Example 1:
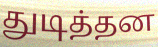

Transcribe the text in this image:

துடித்தன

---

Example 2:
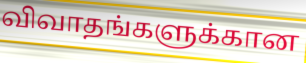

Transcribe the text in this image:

விவாதங்களுக்கான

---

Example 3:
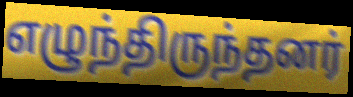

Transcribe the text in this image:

எழுந்திருந்தனர்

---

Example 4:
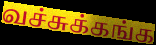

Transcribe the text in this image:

வச்சுக்கங்க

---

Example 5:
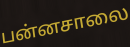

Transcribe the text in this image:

பன்னசாலை